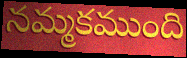
నమ్మకముంది